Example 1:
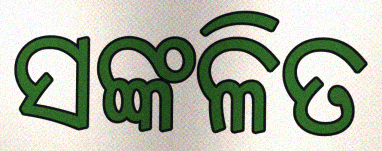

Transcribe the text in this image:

ସଙ୍କଳିତ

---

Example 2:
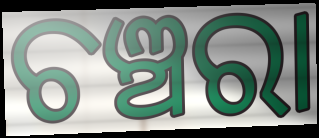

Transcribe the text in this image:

ଚଞ୍ଚରା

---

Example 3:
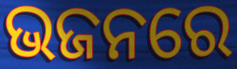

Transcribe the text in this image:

ଭଜନରେ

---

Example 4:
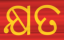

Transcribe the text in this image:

କ୍ଷତ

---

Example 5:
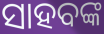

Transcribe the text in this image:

ସାହବଙ୍କ